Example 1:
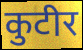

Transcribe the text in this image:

कुटीर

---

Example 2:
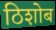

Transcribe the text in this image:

ठिशोब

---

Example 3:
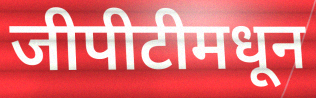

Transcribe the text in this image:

जीपीटीमधून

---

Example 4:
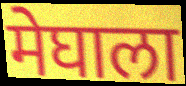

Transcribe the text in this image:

मेघाला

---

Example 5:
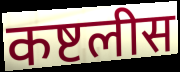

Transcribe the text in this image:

कष्टलीस